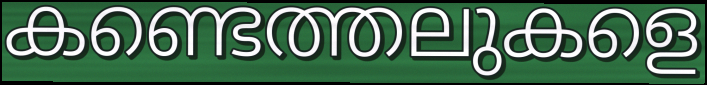
കണ്ടെത്തലുകളെ